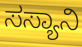
ಸಸ್ಯಾನಿ